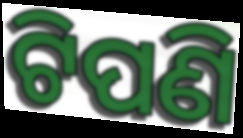
ଟିପଣି